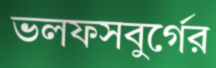
ভলফসবুর্গের